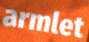
armlet